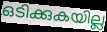
ഒടിക്കുകയില്ല